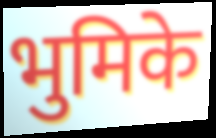
भुमिके